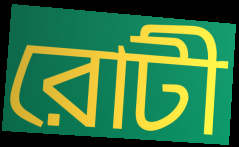
রোটী